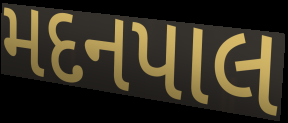
મદનપાલ